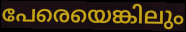
പേരെയെങ്കിലും